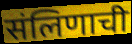
संलिणाची